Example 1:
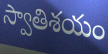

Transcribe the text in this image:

స్వాతిశయం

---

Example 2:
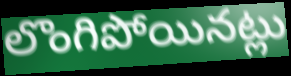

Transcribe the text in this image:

లొంగిపోయినట్లు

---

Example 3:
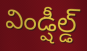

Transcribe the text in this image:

విండ్షీల్డ్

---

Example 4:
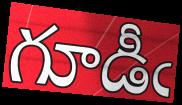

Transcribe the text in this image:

గూడీఁ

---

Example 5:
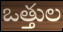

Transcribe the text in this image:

ఒత్తుల